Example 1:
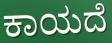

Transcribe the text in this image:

ಕಾಯದೆ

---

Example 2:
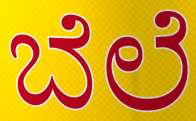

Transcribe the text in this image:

ಬೆಲೆ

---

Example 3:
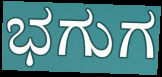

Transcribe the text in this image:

ಭಗುಗ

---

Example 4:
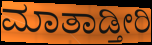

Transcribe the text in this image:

ಮಾತಾಡ್ತೀರಿ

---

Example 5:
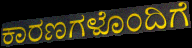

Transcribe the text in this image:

ಕಾರಣಗಳೊಂದಿಗೆ